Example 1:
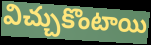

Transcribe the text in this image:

విచ్చుకొంటాయి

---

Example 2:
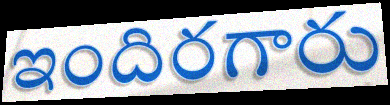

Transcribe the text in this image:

ఇందిరగారు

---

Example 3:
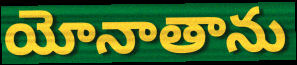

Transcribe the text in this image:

యోనాతాను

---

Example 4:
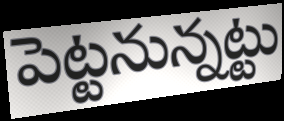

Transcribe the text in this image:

పెట్టనున్నట్టు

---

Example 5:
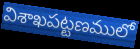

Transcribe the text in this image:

విశాఖపట్టణములో